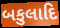
બકુલાદિ